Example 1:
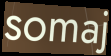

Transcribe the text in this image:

somaj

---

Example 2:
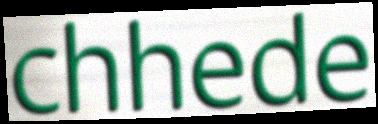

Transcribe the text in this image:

chhede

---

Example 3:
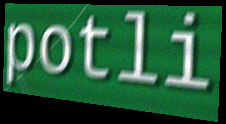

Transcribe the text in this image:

potli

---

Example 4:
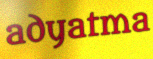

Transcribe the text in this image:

adyatma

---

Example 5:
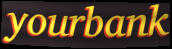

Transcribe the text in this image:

yourbank